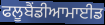
ਫਲੂਬੈਂਡੀਆਮਾਈਡ